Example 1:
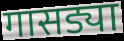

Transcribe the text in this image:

गासड्या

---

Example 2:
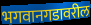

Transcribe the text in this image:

भगवानगडावरील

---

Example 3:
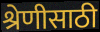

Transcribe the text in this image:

श्रेणीसाठी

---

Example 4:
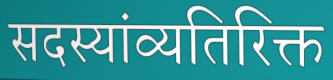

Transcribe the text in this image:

सदस्यांव्यतिरिक्त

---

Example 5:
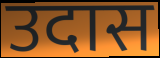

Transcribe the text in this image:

उदास